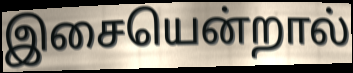
இசையென்றால்